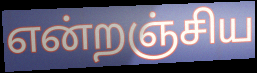
என்றஞ்சிய